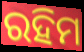
ରହିମ